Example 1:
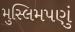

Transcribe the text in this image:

મુસ્લિમપણું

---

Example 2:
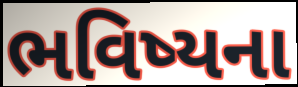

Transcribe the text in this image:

ભવિષ્યના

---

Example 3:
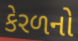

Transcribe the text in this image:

કેરળનો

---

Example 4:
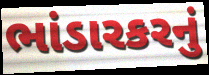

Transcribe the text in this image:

ભાંડારકરનું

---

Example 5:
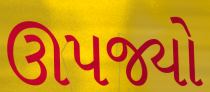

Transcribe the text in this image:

ઊપજ્યો